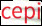
cepi